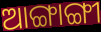
ଆଙ୍ଗାଙ୍ଗୀ